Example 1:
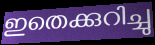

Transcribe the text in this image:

ഇതെക്കുറിച്ചു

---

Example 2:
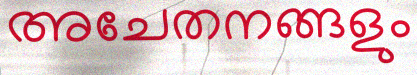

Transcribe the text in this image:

അചേതനങ്ങളും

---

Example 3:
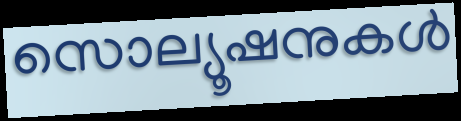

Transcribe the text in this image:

സൊല്യൂഷനുകൾ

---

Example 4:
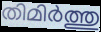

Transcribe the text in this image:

തിമിർത്തു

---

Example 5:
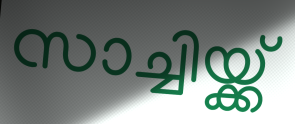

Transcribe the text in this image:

സാച്ചിയ്ക്ക്